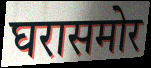
घरासमोर